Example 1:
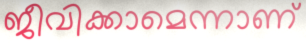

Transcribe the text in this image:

ജീവിക്കാമെന്നാണ്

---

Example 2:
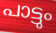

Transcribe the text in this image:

പാട്ടും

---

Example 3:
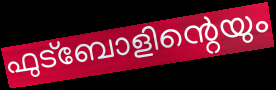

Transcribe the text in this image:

ഫുട്ബോളിന്റെയും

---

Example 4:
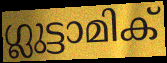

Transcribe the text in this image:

ഗ്ലുട്ടാമിക്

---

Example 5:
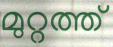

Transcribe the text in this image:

മുറ്റത്ത്